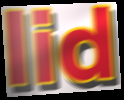
lid